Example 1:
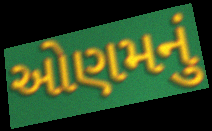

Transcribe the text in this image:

ઓણમનું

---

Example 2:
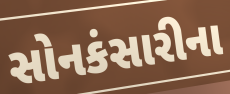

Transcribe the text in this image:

સોનકંસારીના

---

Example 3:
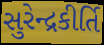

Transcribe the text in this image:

સુરેન્દ્રકીર્તિ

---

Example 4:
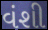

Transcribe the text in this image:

વંશી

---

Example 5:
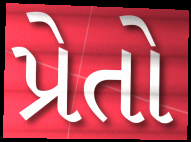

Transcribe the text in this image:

પ્રેતો